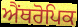
ਐਂਥਰੋਪਿਕ